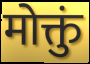
मोक्तुं